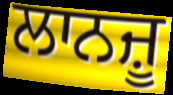
ਲਾਨਜ਼ੂ